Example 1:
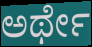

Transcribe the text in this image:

ಅರ್ಥೇ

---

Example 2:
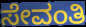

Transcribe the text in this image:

ಸೇವಂತಿ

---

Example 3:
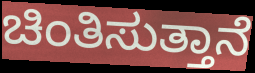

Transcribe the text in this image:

ಚಿಂತಿಸುತ್ತಾನೆ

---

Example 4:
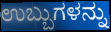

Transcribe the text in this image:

ಉಬ್ಬುಗಳನ್ನು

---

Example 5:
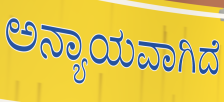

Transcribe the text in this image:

ಅನ್ಯಾಯವಾಗಿದೆ